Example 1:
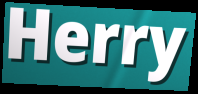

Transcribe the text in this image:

Herry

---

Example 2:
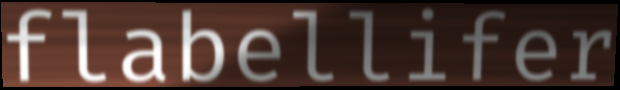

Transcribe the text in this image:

flabellifer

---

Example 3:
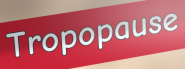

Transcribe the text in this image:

Tropopause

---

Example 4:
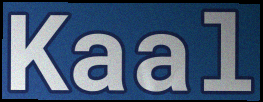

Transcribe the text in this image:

Kaal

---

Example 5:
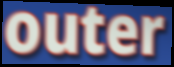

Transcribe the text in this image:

outer